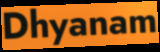
Dhyanam